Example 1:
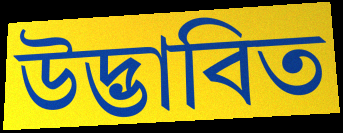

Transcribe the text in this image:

উদ্ভাবিত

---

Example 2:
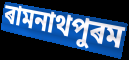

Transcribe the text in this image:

ৰামনাথপুৰম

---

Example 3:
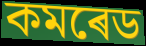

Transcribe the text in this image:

কমৰেড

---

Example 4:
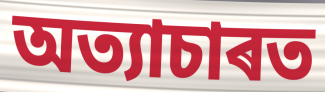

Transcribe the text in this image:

অত্যাচাৰত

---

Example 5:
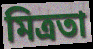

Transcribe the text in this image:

মিত্ৰতা